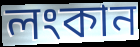
লংকান